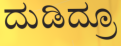
ದುಡಿದ್ರೂ